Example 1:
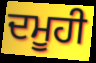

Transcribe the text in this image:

ਦਮੂਹੀ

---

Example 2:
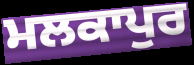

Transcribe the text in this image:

ਮਲਕਾਪੁਰ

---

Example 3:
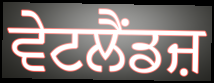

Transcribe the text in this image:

ਵੇਟਲੈਂਡਜ਼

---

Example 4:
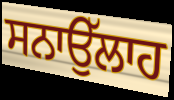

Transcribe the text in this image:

ਸਨਾਉੱਲਾਹ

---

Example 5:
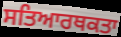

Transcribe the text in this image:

ਸਤਿਆਰਥਕਤਾ